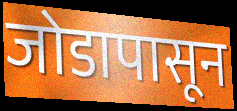
जोडापासून